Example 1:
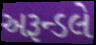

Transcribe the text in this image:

અરૂન્ડલે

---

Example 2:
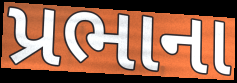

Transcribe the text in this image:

પ્રભાના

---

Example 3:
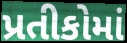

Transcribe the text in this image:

પ્રતીકોમાં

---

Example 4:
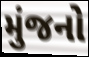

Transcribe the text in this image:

મુંજનો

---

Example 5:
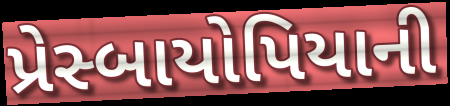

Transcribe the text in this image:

પ્રેસ્બાયોપિયાની